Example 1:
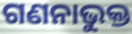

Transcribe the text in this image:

ଗଣନାଭୁକ୍ତ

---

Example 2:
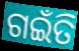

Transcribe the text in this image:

ଗଇଁତି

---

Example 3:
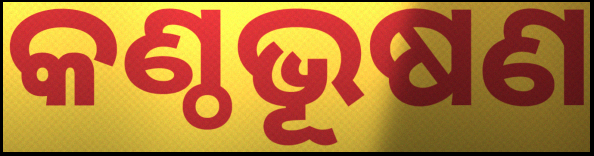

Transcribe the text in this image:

କଣ୍ଠଭୂଷଣ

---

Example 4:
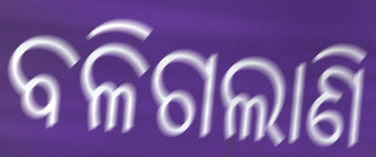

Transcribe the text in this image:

ବଳିଗଲାଣି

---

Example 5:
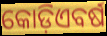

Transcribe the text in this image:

କୋଡ଼ିଏବର୍ଷ